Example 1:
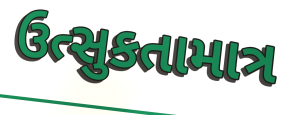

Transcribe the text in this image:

ઉત્સુકતામાત્ર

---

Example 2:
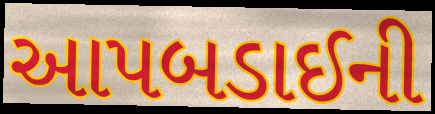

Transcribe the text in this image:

આપબડાઈની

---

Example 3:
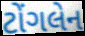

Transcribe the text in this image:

ટોંગલેન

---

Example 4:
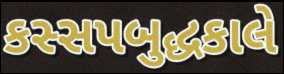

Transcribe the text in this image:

કસ્સપબુદ્ધકાલે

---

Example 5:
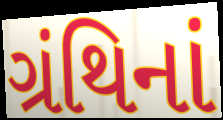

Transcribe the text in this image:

ગ્રંથિનાં